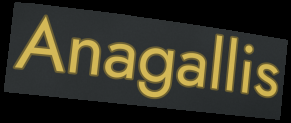
Anagallis